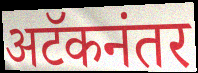
अटॅकनंतर